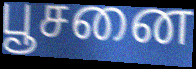
பூசனை